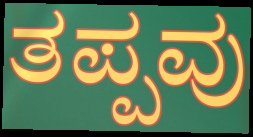
ತಪ್ಪವು